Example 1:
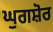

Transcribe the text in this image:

ਘੁਗਸ਼ੋਰ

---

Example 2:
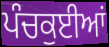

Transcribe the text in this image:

ਪੰਚਕੁਈਆਂ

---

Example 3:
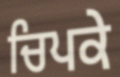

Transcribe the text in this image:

ਚਿਪਕੇ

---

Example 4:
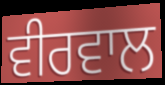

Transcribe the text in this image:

ਵੀਰਵਾਲ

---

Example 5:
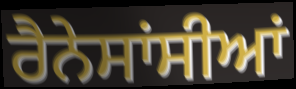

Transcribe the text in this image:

ਰੈਨੇਸਾਂਸੀਆਂ